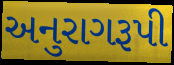
અનુરાગરૂપી